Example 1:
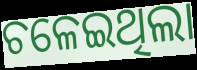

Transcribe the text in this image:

ଚଳେଇଥିଲା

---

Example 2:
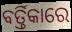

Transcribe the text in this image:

ବର୍ତ୍ତିକାରେ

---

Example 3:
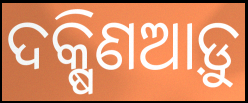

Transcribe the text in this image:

ଦକ୍ଷିଣଆଡ଼ୁ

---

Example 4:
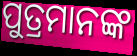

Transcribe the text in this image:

ପୁତ୍ରମାନଙ୍କ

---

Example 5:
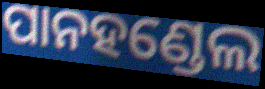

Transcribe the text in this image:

ପାନହଣ୍ଡେଲ